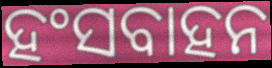
ହଂସବାହନ